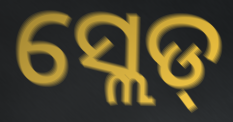
ସ୍ଲେଡ୍